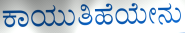
ಕಾಯುತಿಹೆಯೇನು